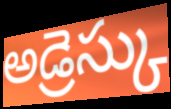
అడ్రెస్కు